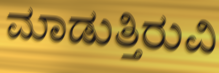
ಮಾಡುತ್ತಿರುವಿ